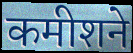
कमीशने